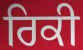
ਰਿਕੀ